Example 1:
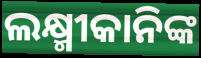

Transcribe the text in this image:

ଲକ୍ଷ୍ମୀକାନିଙ୍କ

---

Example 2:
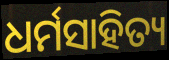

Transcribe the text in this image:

ଧର୍ମସାହିତ୍ୟ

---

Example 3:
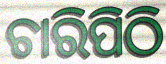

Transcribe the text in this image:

ଚାରିପିଠି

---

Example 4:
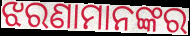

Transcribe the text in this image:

ଝରଣାମାନଙ୍କର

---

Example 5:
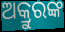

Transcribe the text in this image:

ଅକ୍ରୁରଙ୍କ